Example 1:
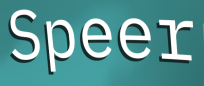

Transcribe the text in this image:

Speer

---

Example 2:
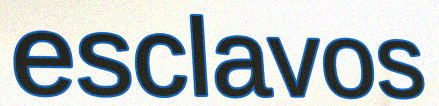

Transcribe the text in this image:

esclavos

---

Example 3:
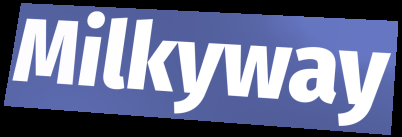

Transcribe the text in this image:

Milkyway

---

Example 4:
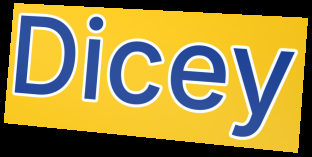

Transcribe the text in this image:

Dicey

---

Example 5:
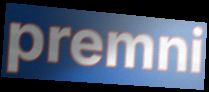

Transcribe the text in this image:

premni